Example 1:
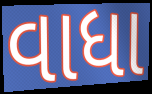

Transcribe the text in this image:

વાધા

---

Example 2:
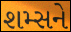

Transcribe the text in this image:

શમ્સને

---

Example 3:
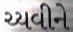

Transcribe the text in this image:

ચ્યવીને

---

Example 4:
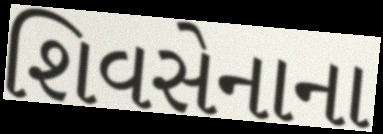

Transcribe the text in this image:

શિવસેનાના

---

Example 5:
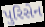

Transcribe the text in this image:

પુરિસેન